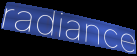
radiance